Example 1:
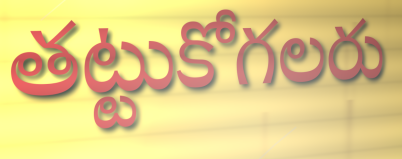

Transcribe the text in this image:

తట్టుకోగలరు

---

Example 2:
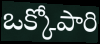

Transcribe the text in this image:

ఒక్కోపారి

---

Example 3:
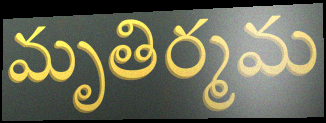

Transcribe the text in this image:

మృతిర్మమ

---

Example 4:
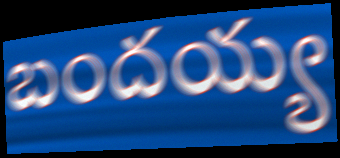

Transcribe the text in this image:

బందయ్య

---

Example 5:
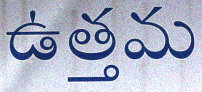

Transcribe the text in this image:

ఉత్తమ